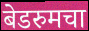
बेडरुमचा